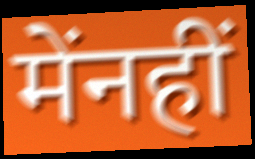
मेंनहीं